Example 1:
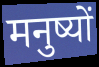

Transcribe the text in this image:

मनुष्यों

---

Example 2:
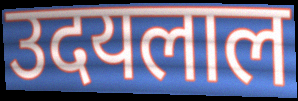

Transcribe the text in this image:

उदयलाल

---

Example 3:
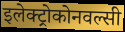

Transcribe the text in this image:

इलेक्ट्रोकोनवल्सी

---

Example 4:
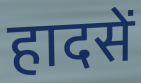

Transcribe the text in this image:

हादसें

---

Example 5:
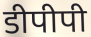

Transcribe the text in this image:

डीपीपी